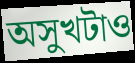
অসুখটাও